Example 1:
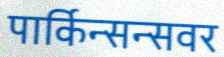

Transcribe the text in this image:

पार्किन्सन्सवर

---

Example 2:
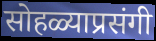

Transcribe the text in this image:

सोहळ्याप्रसंगी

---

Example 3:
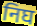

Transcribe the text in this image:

निघ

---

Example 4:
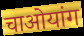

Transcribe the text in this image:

चाओयांग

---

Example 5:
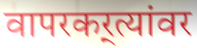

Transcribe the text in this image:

वापरकर्त्यांवर